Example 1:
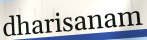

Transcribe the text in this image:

dharisanam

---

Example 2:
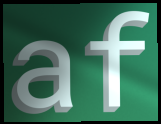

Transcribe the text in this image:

af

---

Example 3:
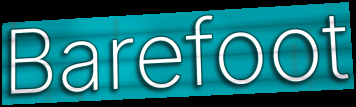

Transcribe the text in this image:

Barefoot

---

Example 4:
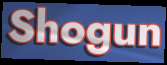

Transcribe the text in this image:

Shogun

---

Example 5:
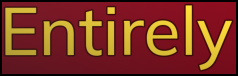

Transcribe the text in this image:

Entirely